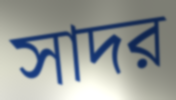
সাদর